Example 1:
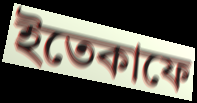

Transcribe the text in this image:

ইতেকাফে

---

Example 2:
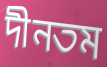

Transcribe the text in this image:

দীনতম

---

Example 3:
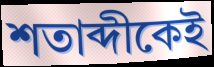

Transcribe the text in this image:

শতাব্দীকেই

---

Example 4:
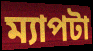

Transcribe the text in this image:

ম্যাপটা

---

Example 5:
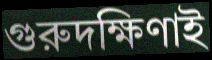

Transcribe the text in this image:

গুরুদক্ষিণাই